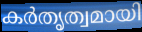
കർതൃത്വമായി